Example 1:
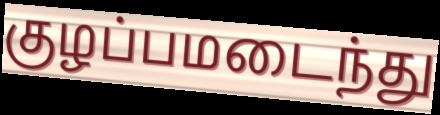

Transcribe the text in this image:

குழப்பமடைந்து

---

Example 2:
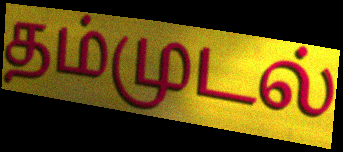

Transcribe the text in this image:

தம்முடல்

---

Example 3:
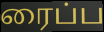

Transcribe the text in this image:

ரைப்ப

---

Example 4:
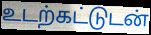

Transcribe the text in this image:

உடற்கட்டுடன்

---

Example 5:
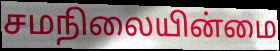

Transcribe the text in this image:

சமநிலையின்மை